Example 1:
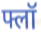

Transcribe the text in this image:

फ्लॉ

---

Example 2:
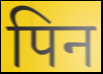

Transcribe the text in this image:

पिन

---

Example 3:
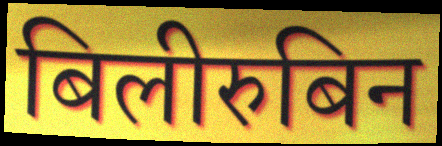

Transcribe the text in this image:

बिलीरुबिन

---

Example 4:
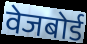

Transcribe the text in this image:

वेजबोर्ड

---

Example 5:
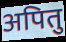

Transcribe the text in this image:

अपितु